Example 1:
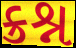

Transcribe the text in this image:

ક્રશ્ન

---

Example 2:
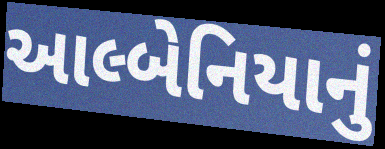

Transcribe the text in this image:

આલ્બેનિયાનું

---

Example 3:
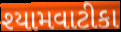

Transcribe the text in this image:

શ્યામવાટીકા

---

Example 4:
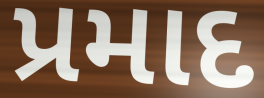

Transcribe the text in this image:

પ્રમાદ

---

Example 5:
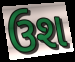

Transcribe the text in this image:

ઉશ